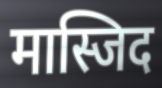
मास्जिद